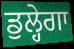
ਡੁਲ੍ਹੇਗਾ